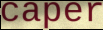
caper